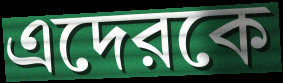
এদেরকে